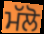
ਮੱਲੋ